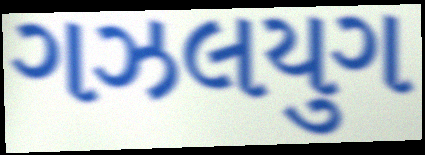
ગઝલયુગ